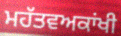
ਮਹੱਤਵਅਕਾਂਖੀ